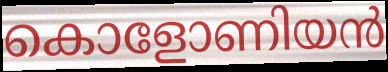
കൊളോണിയൻ